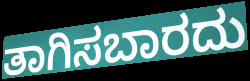
ತಾಗಿಸಬಾರದು